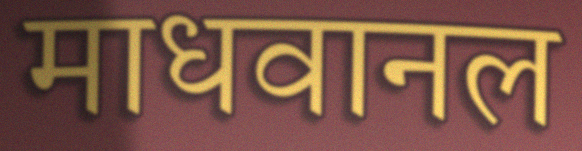
माधवानल